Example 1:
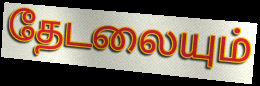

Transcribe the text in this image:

தேடலையும்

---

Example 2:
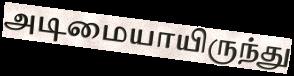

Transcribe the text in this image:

அடிமையாயிருந்து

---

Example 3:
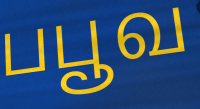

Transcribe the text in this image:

பபூவ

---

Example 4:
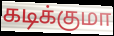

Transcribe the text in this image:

கடிக்குமா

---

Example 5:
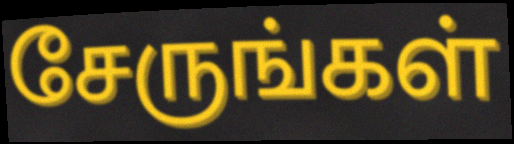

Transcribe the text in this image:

சேருங்கள்